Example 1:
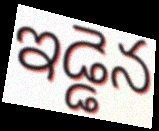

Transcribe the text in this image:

ఇడ్డెన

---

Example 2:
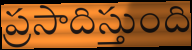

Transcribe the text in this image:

ప్రసాదిస్తుంది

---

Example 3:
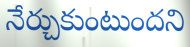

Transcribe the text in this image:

నేర్చుకుంటుందని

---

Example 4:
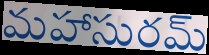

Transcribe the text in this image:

మహాసురమ్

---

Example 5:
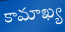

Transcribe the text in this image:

కామాఖ్య